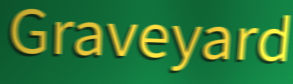
Graveyard